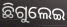
ଛିଗୁଲେଇ